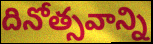
దినోత్సవాన్ని